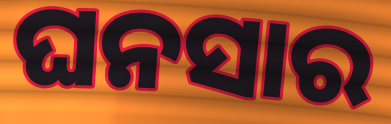
ଘନସାର